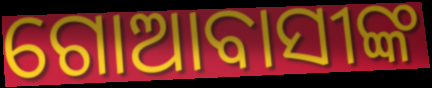
ଗୋଆବାସୀଙ୍କ